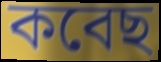
কবেছ